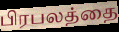
பிரபலத்தை